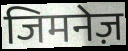
जिमनेज़